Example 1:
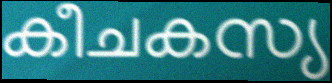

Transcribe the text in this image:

കീചകസ്യ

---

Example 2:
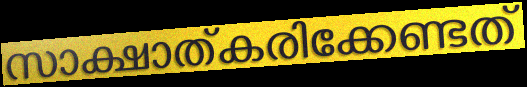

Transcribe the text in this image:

സാക്ഷാത്കരിക്കേണ്ടത്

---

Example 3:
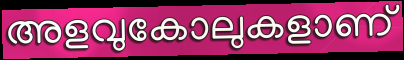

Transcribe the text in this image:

അളവുകോലുകളാണ്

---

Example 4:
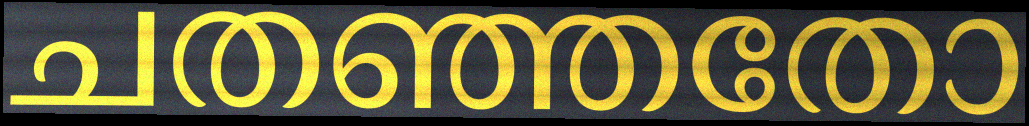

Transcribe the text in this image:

ചതഞ്ഞതോ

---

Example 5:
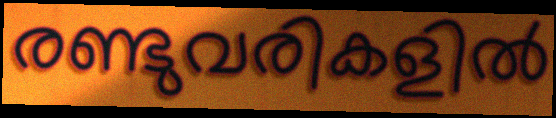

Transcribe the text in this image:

രണ്ടുവരികളിൽ